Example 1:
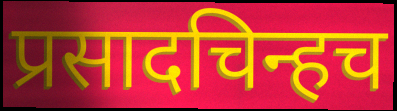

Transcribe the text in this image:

प्रसादचिन्हच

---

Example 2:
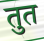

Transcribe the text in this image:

तुत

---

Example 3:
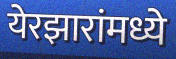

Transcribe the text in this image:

येरझारांमध्ये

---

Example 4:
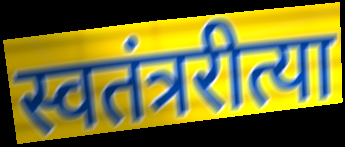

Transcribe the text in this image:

स्वतंत्ररीत्या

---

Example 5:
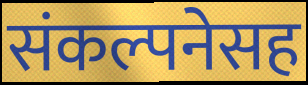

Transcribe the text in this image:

संकल्पनेसह